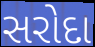
સરોદા